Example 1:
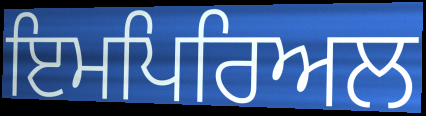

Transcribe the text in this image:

ਇਮਪਿਰਿਅਲ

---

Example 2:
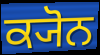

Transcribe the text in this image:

ਕ੍ਯੋਨ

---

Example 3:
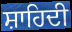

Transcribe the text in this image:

ਸ਼ਾਹਿਦੀ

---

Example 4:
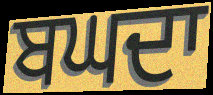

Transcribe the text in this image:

ਬਘਦਾ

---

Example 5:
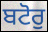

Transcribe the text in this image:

ਬਟੋਰੁ